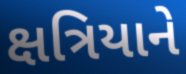
ક્ષત્રિયાને